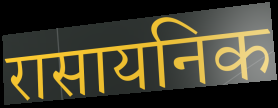
रासायनिक